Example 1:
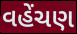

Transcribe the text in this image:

વહેંચણ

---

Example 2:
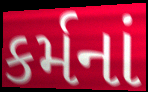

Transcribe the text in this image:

કર્મનાં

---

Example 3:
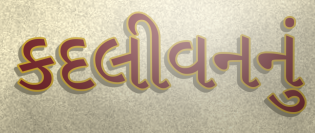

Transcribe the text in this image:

કદલીવનનું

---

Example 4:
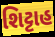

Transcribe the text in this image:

શિટ્ટાહ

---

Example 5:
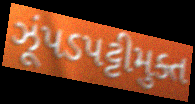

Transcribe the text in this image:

ઝૂંપડપટ્ટીમુક્ત